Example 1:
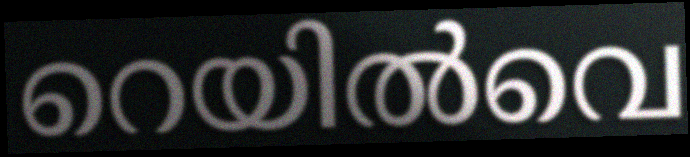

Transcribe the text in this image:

റെയിൽവെ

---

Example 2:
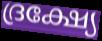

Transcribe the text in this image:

ദ്രക്ഷ്യേ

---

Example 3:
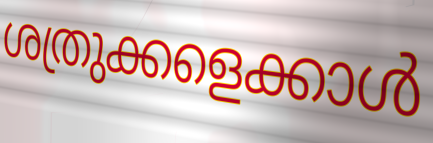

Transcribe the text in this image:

ശത്രുക്കളെക്കാൾ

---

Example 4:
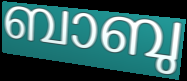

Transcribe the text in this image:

ബാബു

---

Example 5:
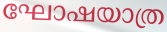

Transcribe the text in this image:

ഘോഷയാത്ര